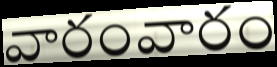
వారంవారం